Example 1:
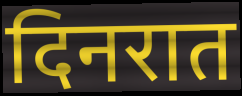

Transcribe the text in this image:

दिनरात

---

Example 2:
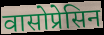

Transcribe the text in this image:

वासोप्रेसिन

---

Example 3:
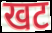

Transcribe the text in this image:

खट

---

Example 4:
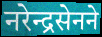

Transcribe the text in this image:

नरेन्द्रसेनने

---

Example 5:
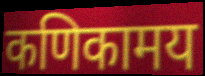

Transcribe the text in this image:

कणिकामय